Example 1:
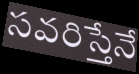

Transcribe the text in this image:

సవరిస్తేనే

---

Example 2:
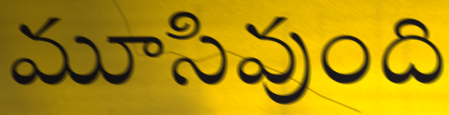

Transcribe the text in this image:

మూసివుంది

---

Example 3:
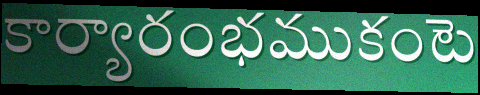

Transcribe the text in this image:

కార్యారంభముకంటె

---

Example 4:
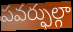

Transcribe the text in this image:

పవర్ఫుల్గా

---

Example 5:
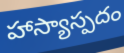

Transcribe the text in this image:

హాస్యాస్పదం